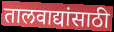
तालवाद्यांसाठी